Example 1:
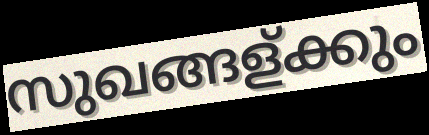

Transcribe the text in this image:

സുഖങ്ങള്ക്കും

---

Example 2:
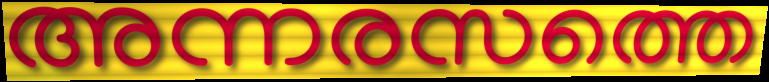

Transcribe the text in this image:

അന്നരസത്തെ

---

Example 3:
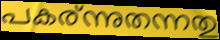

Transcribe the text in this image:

പകര്ന്നുതന്നതു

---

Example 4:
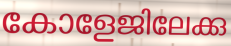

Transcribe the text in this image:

കോളേജിലേക്കു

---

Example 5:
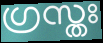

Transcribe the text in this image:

ഗ്രസ്തഃ